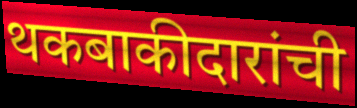
थकबाकीदारांची